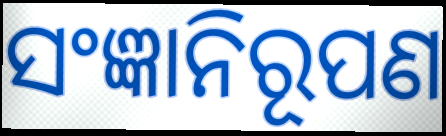
ସଂଜ୍ଞାନିରୂପଣ